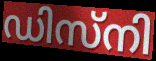
ഡിസ്നി